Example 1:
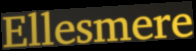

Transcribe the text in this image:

Ellesmere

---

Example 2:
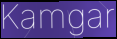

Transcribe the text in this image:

Kamgar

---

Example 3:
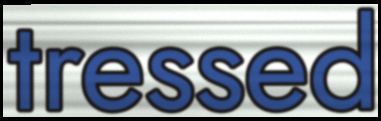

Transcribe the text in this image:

tressed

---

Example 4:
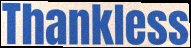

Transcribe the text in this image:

Thankless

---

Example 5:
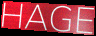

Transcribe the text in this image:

HAGE